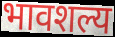
भावशल्य